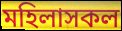
মহিলাসকল